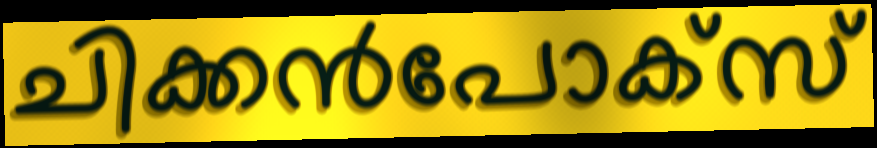
ചിക്കൻപോക്സ്